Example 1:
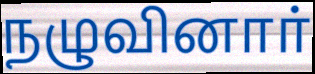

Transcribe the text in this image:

நழுவினார்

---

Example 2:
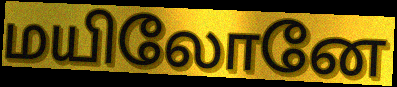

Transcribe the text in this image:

மயிலோனே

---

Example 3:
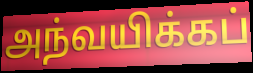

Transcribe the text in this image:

அந்வயிக்கப்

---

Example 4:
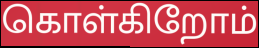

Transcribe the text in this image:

கொள்கிறோம்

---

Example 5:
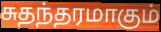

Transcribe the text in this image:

சுதந்தரமாகும்